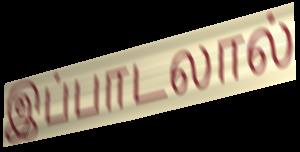
இப்பாடலால்